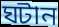
ঘটান